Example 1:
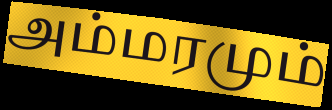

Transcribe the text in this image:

அம்மரமும்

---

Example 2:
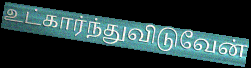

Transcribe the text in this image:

உட்கார்ந்துவிடுவேன்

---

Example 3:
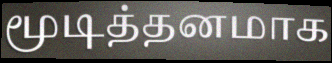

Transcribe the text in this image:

மூடித்தனமாக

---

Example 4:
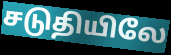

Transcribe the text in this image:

சடுதியிலே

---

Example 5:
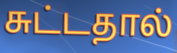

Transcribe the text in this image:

சுட்டதால்